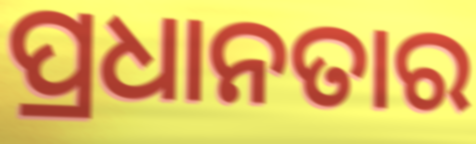
ପ୍ରଧାନତାର